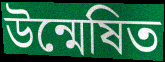
উন্মেষিত